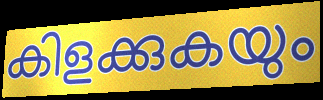
കിളക്കുകയും